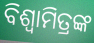
ବିଶ୍ଵାମିତ୍ରଙ୍କ